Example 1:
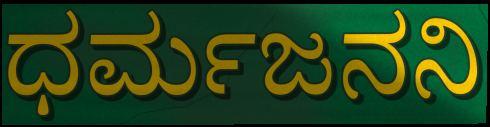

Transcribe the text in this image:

ಧರ್ಮಜನನಿ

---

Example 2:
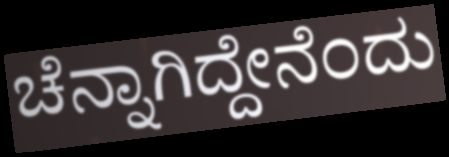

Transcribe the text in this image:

ಚೆನ್ನಾಗಿದ್ದೇನೆಂದು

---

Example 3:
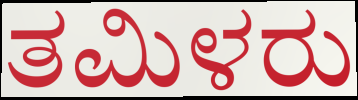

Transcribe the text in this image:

ತಮಿಳರು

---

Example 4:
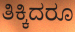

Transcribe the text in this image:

ತಿಕ್ಕಿದರೂ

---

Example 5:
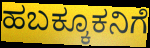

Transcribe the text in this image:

ಹಬಕ್ಕೂಕನಿಗೆ